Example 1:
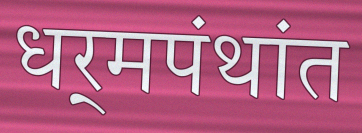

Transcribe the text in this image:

धर्मपंथांत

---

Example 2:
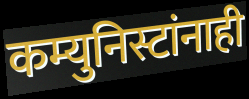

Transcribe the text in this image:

कम्युनिस्टांनाही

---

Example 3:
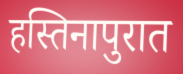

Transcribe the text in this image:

हस्तिनापुरात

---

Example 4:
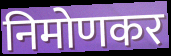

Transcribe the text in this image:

निमोणकर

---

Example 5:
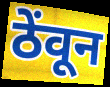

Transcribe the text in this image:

ठेंवून